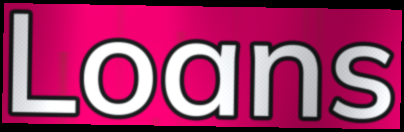
Loans